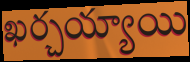
ఖర్చయ్యాయి